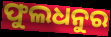
ଫୁଲଧନୁର